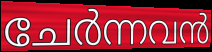
ചേർന്നവൻ